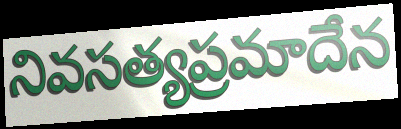
నివసత్యప్రమాదేన